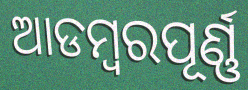
ଆଡମ୍ବରପୂର୍ଣ୍ଣ